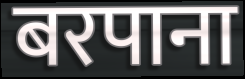
बरपाना